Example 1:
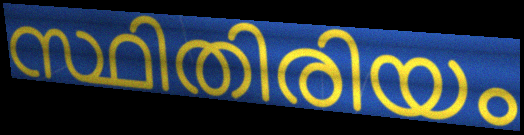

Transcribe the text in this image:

സ്ഥിതിരിയം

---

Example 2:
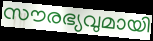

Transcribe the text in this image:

സൗരഭ്യവുമായി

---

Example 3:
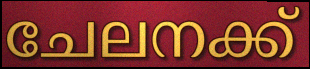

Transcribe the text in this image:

ചേലനക്ക്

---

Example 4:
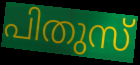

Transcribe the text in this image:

പിതുസ്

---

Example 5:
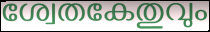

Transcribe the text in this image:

ശ്വേതകേതുവും